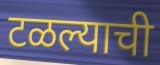
टळल्याची